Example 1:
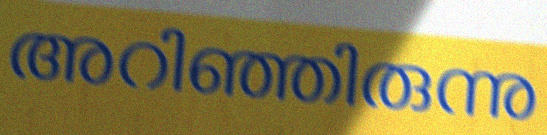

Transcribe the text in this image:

അറിഞ്ഞിരുന്നു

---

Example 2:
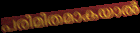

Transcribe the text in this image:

പരിമിതമാകയാൽ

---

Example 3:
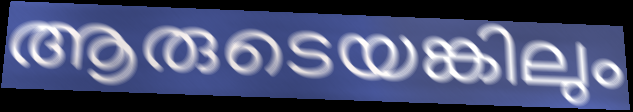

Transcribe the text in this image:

ആരുടെയങ്കിലും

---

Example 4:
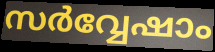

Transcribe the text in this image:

സർവ്വേഷാം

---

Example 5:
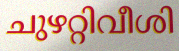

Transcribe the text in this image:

ചുഴറ്റിവീശി